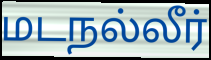
மடநல்லீர்